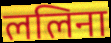
ललिना